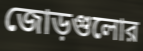
জোড়গুলোর